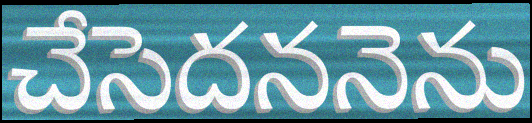
చేసెదననెను